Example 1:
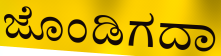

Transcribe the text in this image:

ಜೊಂಡಿಗದಾ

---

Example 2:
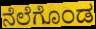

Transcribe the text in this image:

ನೆಲೆಗೊಂಡ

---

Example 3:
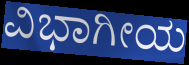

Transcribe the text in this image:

ವಿಭಾಗೀಯ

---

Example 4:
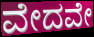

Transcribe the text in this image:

ವೇದವೇ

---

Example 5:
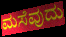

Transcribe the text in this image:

ಮಸೆವುದು